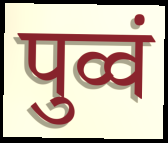
पुव्वं